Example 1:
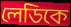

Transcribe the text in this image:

লেডিকে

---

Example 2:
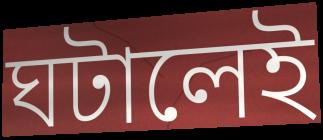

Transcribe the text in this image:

ঘটালেই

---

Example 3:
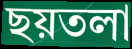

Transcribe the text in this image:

ছয়তলা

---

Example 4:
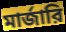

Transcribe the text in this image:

মার্জারি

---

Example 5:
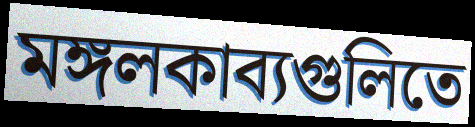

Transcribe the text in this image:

মঙ্গলকাব্যগুলিতে